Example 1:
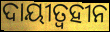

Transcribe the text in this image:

ଦାୟୀତ୍ୱହୀନ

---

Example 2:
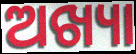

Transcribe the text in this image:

ଅଖ୍ୟା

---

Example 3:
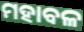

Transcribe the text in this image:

ମହାବଳ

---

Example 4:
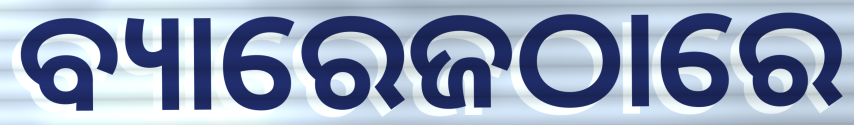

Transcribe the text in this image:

ବ୍ୟାରେଜଠାରେ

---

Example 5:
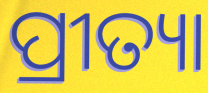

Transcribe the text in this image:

ପ୍ରୀତ୍ୟା